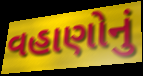
વહાણોનું